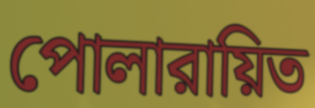
পোলারায়িত